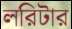
লরিটার